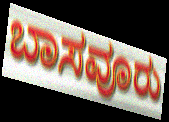
ಬಾಸವೂರು